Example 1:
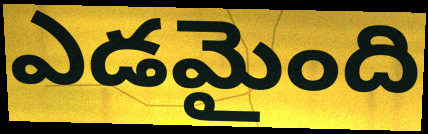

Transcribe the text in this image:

ఎడమైంది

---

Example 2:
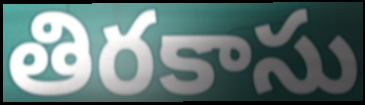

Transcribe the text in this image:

తిరకాసు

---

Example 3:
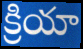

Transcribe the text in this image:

క్రియా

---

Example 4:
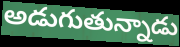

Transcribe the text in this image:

అడుగుతున్నాడు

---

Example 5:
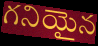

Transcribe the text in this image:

గనియైన